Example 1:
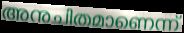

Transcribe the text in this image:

അനുചിതമാണെന്ന്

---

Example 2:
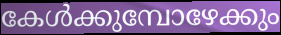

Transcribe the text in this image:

കേൾക്കുമ്പോഴേക്കും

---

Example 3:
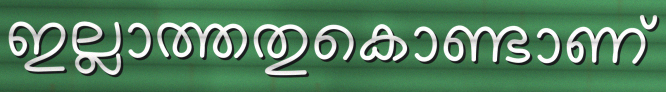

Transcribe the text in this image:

ഇല്ലാത്തതുകൊണ്ടാണ്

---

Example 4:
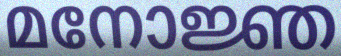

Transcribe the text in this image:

മനോജ്ഞ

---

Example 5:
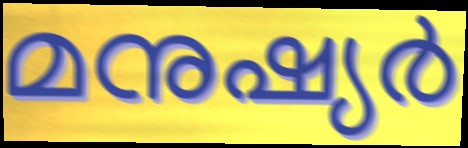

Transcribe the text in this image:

മനുഷ്യർ